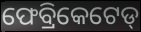
ଫେବ୍ରିକେଟେଡ୍